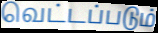
வெட்டப்படும்